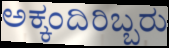
ಅಕ್ಕಂದಿರಿಬ್ಬರು